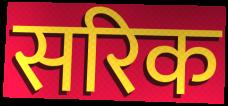
सरिक